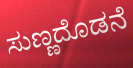
ಸುಣ್ಣದೊಡನೆ